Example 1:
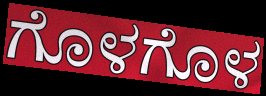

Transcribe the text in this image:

ಗೊಳಗೊಳ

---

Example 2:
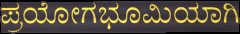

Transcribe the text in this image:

ಪ್ರಯೋಗಭೂಮಿಯಾಗಿ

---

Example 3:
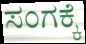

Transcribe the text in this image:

ಸಂಗಕ್ಕೆ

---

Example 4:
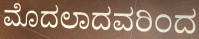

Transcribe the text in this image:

ಮೊದಲಾದವರಿಂದ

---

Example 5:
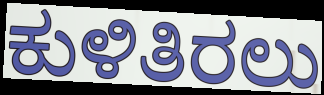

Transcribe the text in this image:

ಕುಳಿತಿರಲು